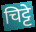
चिट्टे